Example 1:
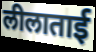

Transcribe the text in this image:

लीलाताई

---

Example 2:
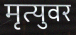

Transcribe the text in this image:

मृत्युवर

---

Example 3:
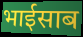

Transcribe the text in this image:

भाईसाब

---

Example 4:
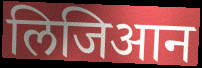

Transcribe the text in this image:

लिजिआन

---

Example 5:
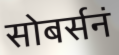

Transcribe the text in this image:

सोबर्सनं